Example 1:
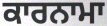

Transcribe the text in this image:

ਕਾਰਨਾਮਾ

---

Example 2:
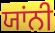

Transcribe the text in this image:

ਯਾਂਨੀ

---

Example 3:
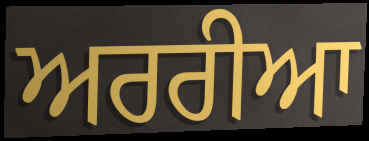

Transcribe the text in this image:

ਅਰਰੀਆ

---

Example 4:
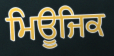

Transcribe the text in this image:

ਮਿਊਜਿਕ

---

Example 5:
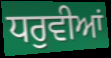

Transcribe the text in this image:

ਧਰੁਵੀਆਂ